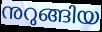
നുറുങ്ങിയ